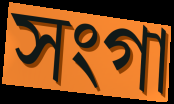
সংগা